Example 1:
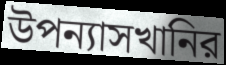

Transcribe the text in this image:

উপন্যাসখানির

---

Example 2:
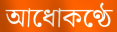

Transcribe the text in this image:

আধোকণ্ঠে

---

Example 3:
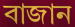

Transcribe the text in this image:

বাজান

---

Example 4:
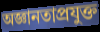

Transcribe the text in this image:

অজ্ঞানতাপ্রযুক্ত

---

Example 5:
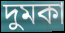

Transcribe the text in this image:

দুমকা